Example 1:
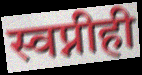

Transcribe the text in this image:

स्वप्नीही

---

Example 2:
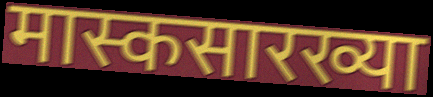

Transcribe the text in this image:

मास्कसारख्या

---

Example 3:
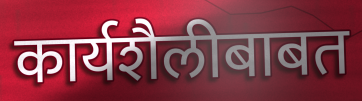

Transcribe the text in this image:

कार्यशैलीबाबत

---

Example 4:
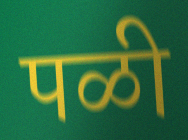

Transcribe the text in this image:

पळी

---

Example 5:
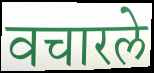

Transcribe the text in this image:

वचारले